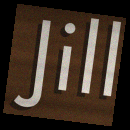
Jill